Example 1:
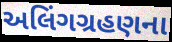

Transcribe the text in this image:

અલિંગગ્રહણના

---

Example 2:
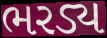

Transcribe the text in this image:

ભરડ્ય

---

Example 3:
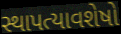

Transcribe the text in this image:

સ્થાપત્યાવશેષો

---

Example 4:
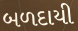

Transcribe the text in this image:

બળદાયી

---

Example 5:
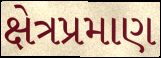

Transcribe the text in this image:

ક્ષેત્રપ્રમાણ